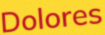
Dolores